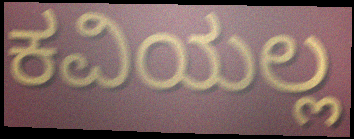
ಕವಿಯಲ್ಲ